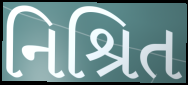
નિશ્રિત